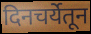
दिनचर्येतून